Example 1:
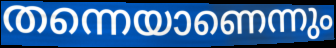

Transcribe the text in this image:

തന്നെയാണെന്നും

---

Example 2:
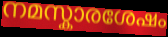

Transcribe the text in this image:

നമസ്കാരശേഷം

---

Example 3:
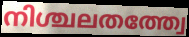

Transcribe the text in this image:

നിശ്ചലതത്ത്വേ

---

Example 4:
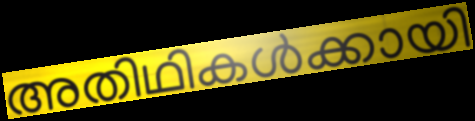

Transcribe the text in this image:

അതിഥികൾക്കായി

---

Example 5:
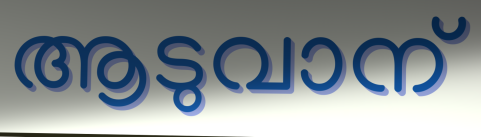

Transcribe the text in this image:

ആടുവാന്